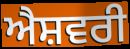
ਐਸ਼ਵਰੀ